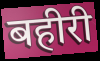
बहीरी